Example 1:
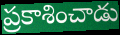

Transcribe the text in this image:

ప్రకాశించాడు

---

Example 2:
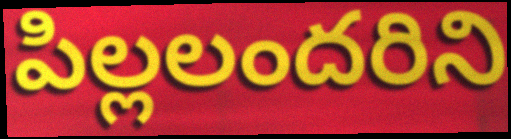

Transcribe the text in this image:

పిల్లలందరిని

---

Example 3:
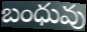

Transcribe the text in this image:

బంధువు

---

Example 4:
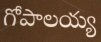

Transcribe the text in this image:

గోపాలయ్య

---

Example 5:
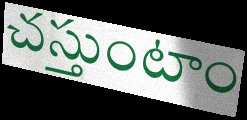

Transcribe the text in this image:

చస్తుంటాం